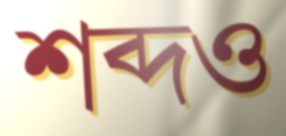
শব্দও